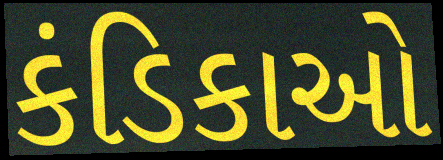
કંડિકાઓ